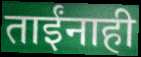
ताईंनाही